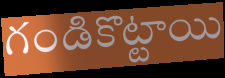
గండికొట్టాయి